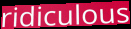
ridiculous